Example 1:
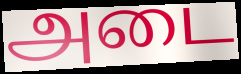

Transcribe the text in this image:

அடை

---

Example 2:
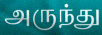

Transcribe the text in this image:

அருந்து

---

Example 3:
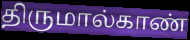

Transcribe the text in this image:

திருமால்காண்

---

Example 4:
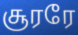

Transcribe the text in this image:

சூரரே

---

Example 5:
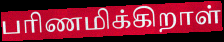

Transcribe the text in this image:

பரிணமிக்கிறாள்